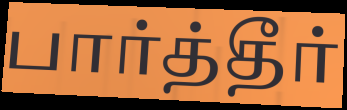
பார்த்தீர்